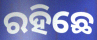
ରହିଛେ